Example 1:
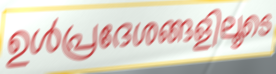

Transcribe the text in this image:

ഉൾപ്രദേശങ്ങളിലൂടെ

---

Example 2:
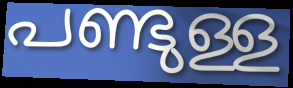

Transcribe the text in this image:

പണ്ടുള്ള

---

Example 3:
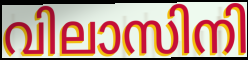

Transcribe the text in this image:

വിലാസിനി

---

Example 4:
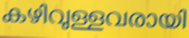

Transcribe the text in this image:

കഴിവുള്ളവരായി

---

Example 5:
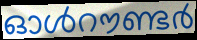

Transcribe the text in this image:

ഓൾറൗണ്ടർ